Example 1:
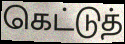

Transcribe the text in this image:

கெட்டுத்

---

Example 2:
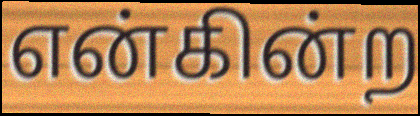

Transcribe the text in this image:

என்கின்ற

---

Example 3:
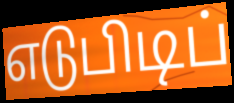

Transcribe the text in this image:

எடுபிடிப்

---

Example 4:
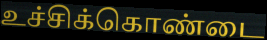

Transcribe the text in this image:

உச்சிக்கொண்டை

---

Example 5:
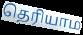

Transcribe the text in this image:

தெரியாம